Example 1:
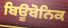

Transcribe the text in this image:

ਬਿਊਬੋਨਿਕ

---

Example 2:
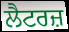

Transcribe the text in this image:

ਲੈਟਰਜ਼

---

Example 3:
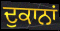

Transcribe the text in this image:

ਦੁਕਾਨਾਂ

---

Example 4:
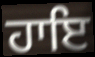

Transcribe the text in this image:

ਹਾਇ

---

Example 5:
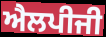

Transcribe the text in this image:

ਐਲਪੀਜੀ